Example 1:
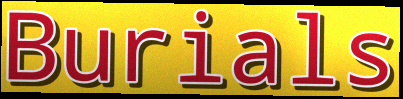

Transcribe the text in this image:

Burials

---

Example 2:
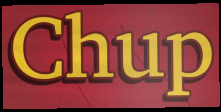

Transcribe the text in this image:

Chup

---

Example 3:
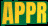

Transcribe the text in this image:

APPR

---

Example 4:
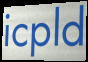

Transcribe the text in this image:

icpld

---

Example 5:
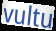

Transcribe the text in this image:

vultu